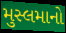
મુસ્લમાનો